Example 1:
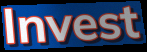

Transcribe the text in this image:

Invest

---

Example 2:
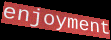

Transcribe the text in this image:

enjoyment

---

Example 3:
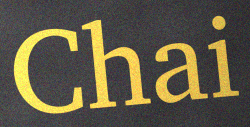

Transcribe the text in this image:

Chai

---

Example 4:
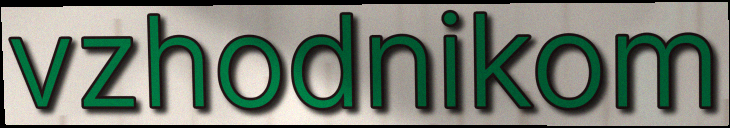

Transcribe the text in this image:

vzhodnikom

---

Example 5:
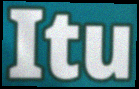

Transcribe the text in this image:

Itu